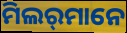
ମିଲର୍‌ମାନେ